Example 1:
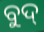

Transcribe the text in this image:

ବୁଦ୍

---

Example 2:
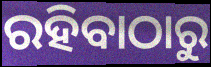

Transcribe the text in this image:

ରହିବାଠାରୁ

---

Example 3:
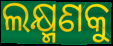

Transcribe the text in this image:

ଲକ୍ଷ୍ମଣକୁ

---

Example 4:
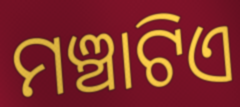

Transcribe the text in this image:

ମଞ୍ଚାଟିଏ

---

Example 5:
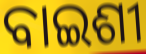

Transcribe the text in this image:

ବାଇଶୀ